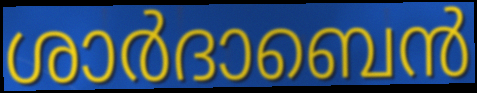
ശാർദാബെൻ